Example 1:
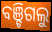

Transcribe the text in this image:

ବଞ୍ଚିଗଲୁ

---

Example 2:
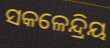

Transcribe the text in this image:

ସକଳେନ୍ଦ୍ରିୟ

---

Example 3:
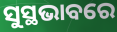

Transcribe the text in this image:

ସୁସ୍ଥଭାବରେ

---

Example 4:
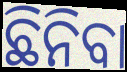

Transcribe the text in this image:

ଛିନିବା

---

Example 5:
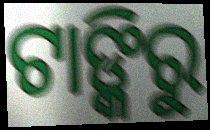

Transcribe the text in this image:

ଟାଙ୍କିରୁ